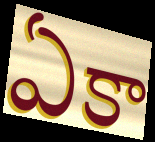
ఏకా